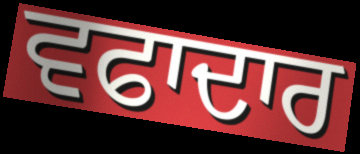
ਵਫਾਦਾਰ